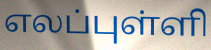
எலப்புள்ளி